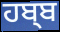
ਹਬ੍ਬ